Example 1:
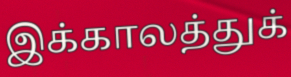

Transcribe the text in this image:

இக்காலத்துக்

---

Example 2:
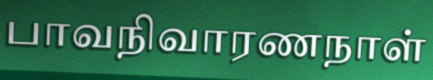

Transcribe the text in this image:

பாவநிவாரணநாள்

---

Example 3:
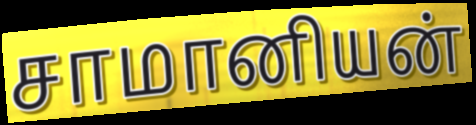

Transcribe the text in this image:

சாமானியன்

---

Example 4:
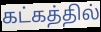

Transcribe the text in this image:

கட்கத்தில்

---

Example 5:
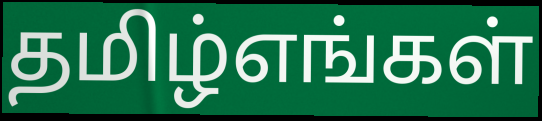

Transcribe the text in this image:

தமிழ்எங்கள்